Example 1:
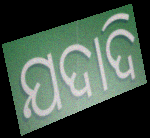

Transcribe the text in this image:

ଯଦାଦି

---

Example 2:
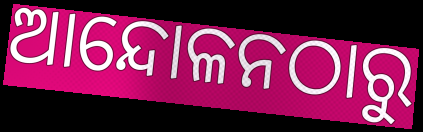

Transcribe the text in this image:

ଆନ୍ଦୋଳନଠାରୁ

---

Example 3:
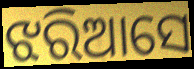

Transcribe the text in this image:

ଝରିଆସେ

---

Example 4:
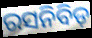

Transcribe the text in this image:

ରସନିବିଡ଼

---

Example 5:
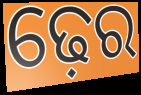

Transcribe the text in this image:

ଢ଼େର